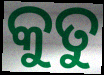
କୁତୁ